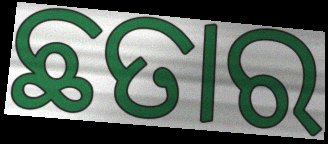
ଛତାର